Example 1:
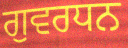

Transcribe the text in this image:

ਗੁਵਰਧਨ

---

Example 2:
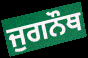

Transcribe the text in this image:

ਜੁਗਨੌਥ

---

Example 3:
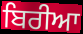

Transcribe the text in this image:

ਬਿਰੀਆ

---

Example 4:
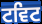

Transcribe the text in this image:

ਟਵਿਟ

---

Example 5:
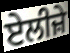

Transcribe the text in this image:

ਏਲੀਜ਼ੇ